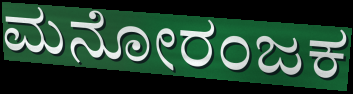
ಮನೋರಂಜಕ